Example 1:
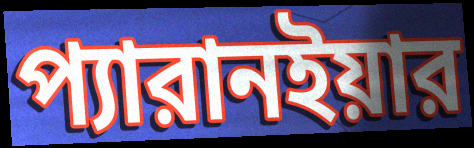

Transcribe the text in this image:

প্যারানইয়ার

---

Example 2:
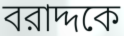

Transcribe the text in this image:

বরাদ্দকে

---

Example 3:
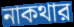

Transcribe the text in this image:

নাকথার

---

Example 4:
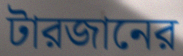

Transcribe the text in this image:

টারজানের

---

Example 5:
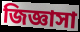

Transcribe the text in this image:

জিজ্ঞাসা